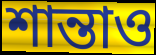
শান্তাও